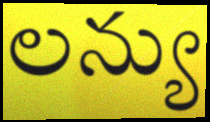
లన్యు